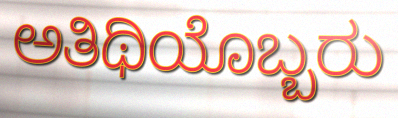
ಅತಿಥಿಯೊಬ್ಬರು